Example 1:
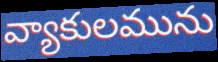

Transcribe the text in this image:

వ్యాకులమును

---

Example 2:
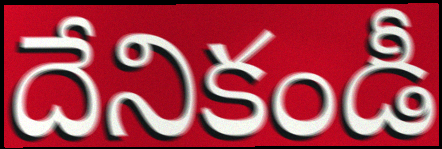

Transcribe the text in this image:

దేనికండీ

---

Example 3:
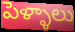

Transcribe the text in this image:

పెళ్ళాలు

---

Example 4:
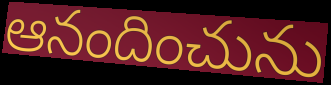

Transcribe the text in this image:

ఆనందించును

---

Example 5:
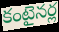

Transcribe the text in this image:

కంటైనర్ల